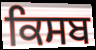
ਕਿਸਬ